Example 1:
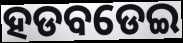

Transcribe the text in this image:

ହଡବଡେଇ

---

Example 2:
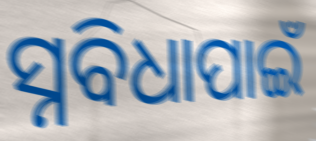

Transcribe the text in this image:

ସ୍ନବିଧାପାଇଁ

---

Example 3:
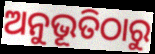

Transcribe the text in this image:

ଅନୁଭୂତିଠାରୁ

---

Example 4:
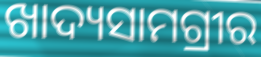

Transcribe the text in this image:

ଖାଦ୍ୟସାମଗ୍ରୀର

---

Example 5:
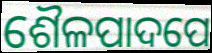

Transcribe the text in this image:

ଶୈଳପାଦପେ